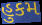
હુકમ